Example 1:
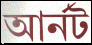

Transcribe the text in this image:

আর্নট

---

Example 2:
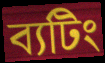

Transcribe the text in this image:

ব্যটিং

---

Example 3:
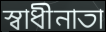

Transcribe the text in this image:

স্বাধীনাতা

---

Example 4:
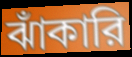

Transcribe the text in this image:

ঝাঁকারি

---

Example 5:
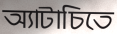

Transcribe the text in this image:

অ্যাটাচিতে